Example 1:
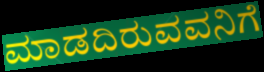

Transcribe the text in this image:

ಮಾಡದಿರುವವನಿಗೆ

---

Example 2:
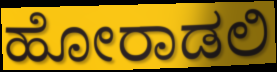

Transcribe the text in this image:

ಹೋರಾಡಲಿ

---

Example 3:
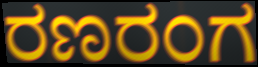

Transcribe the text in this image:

ರಣರಂಗ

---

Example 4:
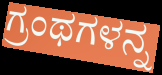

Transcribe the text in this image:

ಗ್ರಂಥಗಳನ್ನ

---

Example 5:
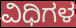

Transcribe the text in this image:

ವಿಧಿಗಳ